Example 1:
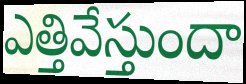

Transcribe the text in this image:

ఎత్తివేస్తుందా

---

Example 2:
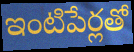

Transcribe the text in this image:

ఇంటిపేర్లతో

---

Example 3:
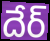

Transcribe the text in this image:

దేర్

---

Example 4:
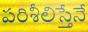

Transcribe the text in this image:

పరిశీలిస్తేనే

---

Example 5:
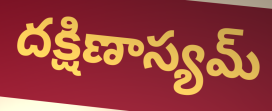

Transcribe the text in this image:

దక్షిణాస్యమ్